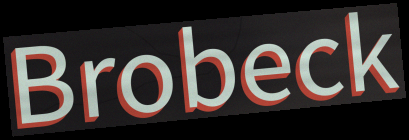
Brobeck